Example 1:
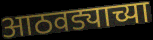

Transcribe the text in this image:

आठवड्याच्या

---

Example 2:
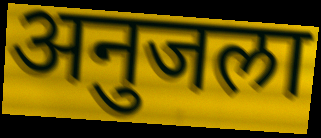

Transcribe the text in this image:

अनुजला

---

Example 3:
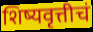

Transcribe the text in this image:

शिष्यवृत्तीचं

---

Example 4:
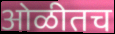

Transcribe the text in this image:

ओळीतच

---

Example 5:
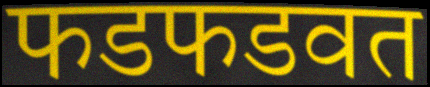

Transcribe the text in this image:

फडफडवत